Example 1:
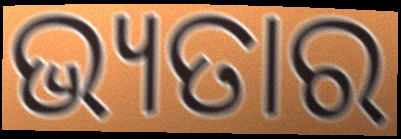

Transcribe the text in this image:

ଭ୍ୟତାର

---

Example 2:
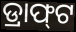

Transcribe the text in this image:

ଡ୍ରାଫ୍‌ଟ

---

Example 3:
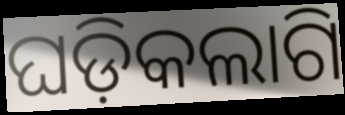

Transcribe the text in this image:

ଘଡ଼ିକଲାଗି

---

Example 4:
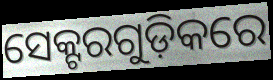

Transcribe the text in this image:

ସେକ୍ଟରଗୁଡ଼ିକରେ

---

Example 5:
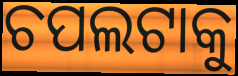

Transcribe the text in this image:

ଚପଲଟାକୁ